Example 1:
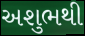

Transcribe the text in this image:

અશુભથી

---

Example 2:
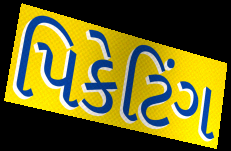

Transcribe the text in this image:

પિકેટિંગ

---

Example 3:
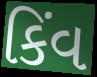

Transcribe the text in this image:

કિંવ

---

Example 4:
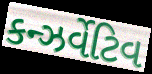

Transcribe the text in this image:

કન્ઝર્વેટિવ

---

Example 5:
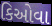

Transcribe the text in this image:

કિઓવા